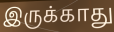
இருக்காது